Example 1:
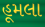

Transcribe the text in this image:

હૂમલા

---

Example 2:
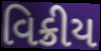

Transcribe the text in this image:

વિક્રીય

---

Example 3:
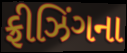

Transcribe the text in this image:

ફ્રીઝિંગના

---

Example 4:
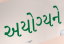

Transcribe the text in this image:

અયોગ્યને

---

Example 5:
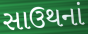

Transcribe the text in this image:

સાઉથનાં